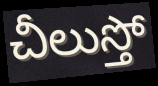
చీలుస్తో